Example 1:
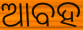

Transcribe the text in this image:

ଆବହ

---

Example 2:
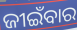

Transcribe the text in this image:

ଜୀଇଁବାର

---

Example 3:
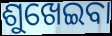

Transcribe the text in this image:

ଶୁଖେଇବା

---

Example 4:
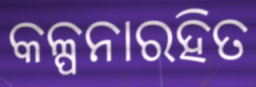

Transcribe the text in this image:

କଳ୍ପନାରହିତ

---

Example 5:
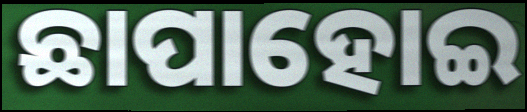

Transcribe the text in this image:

ଛାପାହୋଇ